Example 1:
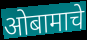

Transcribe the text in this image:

ओबामाचे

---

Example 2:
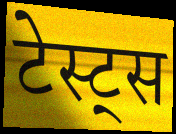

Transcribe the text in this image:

टेस्ट्स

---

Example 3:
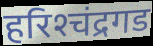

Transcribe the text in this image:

हरिश्चंद्रगड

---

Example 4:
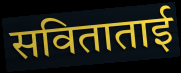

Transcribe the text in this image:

सविताताई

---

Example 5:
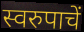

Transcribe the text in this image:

स्वरुपाचें